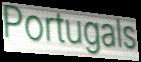
Portugals